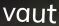
vaut